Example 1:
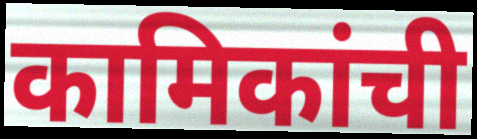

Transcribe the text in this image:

कामिकांची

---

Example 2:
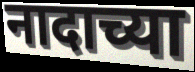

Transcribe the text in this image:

नादाच्या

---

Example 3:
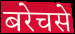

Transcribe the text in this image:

बरेचसे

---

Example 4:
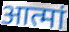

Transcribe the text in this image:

आत्मां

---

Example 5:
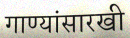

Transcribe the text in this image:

गाण्यांसारखी